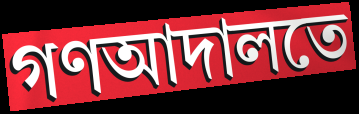
গণআদালতে